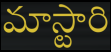
మాస్టారి